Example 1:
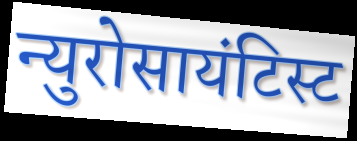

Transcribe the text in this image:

न्युरोसायंटिस्ट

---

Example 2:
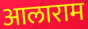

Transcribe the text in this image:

आलाराम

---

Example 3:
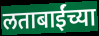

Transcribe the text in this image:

लताबाईंच्या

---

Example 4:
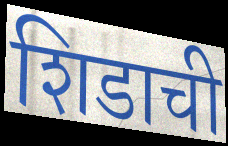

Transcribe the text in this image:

शिडाची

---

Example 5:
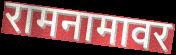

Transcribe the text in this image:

रामनामावर